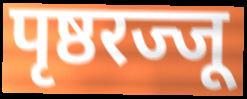
पृष्ठरज्जू